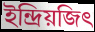
ইন্দ্রিয়জিৎ